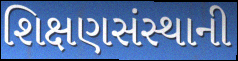
શિક્ષણસંસ્થાની